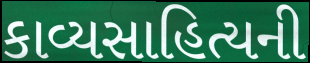
કાવ્યસાહિત્યની